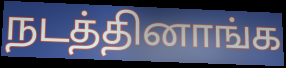
நடத்தினாங்க